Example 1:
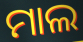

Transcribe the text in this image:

ମାଲ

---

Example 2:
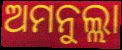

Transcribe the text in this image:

ଅମନୁଲ୍ଲା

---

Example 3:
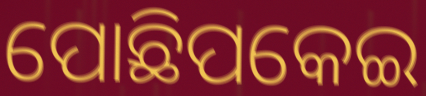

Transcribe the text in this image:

ପୋଛିପକେଇ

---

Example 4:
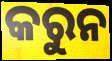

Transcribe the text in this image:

କରୁନ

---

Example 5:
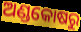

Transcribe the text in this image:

ଅଣ୍ଡକୋଷରୁ